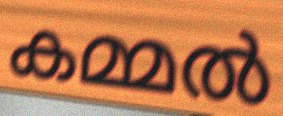
കമ്മൽ